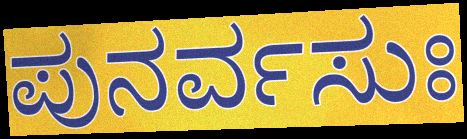
ಪುನರ್ವಸುಃ